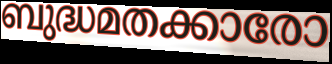
ബുദ്ധമതക്കാരോ